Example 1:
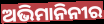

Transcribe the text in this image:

ଅଭିମାନିନୀର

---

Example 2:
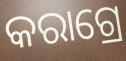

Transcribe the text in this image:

କରାଗ୍ରେ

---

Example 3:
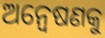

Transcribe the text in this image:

ଅନ୍ବେଷଣକୁ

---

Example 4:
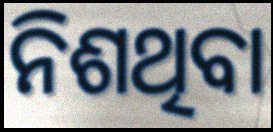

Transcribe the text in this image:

ନିଶଥିବା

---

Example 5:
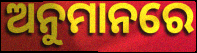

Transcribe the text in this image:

ଅନୁମାନରେ